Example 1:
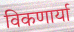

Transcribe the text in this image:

विकणार्या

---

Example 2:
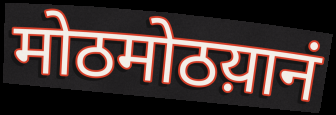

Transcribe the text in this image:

मोठमोठय़ानं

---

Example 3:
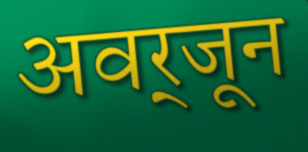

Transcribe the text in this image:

अवर्जून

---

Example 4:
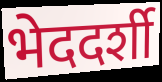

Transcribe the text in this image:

भेददर्शी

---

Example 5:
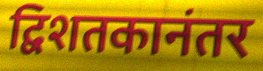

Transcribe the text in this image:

द्विशतकानंतर